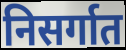
निसर्गात